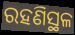
ରହଣିସ୍ଥଳ